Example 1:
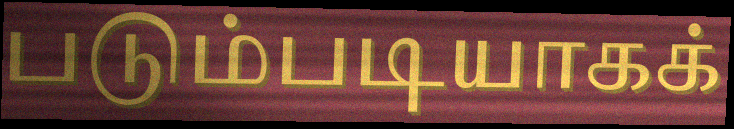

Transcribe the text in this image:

படும்படியாகக்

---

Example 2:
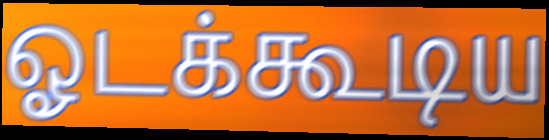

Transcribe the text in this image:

ஓடக்கூடிய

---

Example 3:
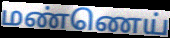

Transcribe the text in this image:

மண்ணெய்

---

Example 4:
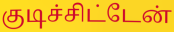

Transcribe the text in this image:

குடிச்சிட்டேன்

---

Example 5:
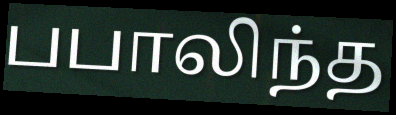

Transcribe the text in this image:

பபாலிந்த